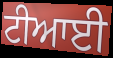
ਟੀਆਈ